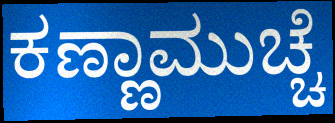
ಕಣ್ಣಾಮುಚ್ಚೆ